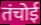
तंचोई